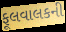
ફૂલવાલકની